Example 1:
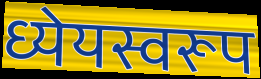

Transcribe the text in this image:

ध्येयस्वरूप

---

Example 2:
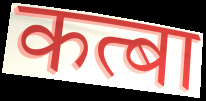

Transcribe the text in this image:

कत्बा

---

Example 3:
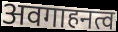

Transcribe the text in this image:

अवगाहनत्व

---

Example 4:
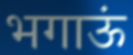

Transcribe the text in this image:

भगाऊं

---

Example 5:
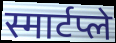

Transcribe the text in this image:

स्मार्टप्ले